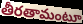
తీరతామంటూ